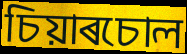
চিয়াৰচোল